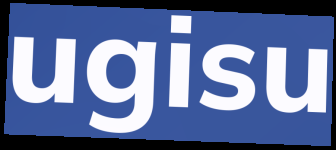
ugisu